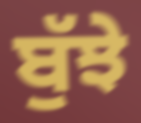
ਬੁੱਝੇ